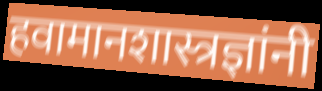
हवामानशास्त्रज्ञांनी